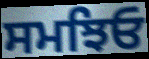
ਸਮਝਿਓ